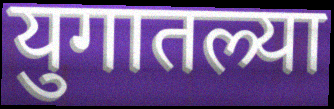
युगातल्या